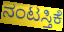
ನಂಟಸ್ತಿಕೆ